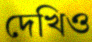
দেখিও